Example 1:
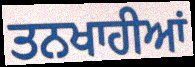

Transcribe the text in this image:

ਤਨਖਾਹੀਆਂ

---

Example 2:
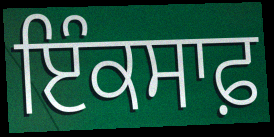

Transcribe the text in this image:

ਇੰਕਸਾਫ਼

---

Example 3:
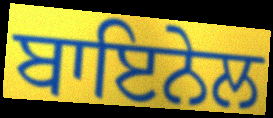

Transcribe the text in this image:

ਬਾਇਨੇਲ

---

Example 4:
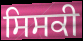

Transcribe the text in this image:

ਸਿਸਕੀ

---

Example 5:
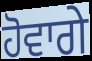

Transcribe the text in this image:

ਹੋਵਾਗੇ